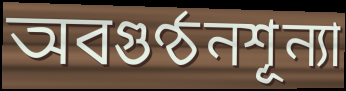
অবগুণ্ঠনশূন্যা